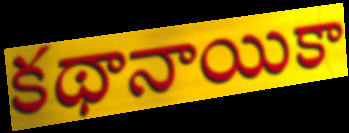
కథానాయికా